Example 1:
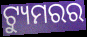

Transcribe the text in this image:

ଟ୍ୟୁମରର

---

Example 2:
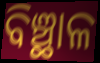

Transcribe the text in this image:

ବିଞ୍ଛାଳ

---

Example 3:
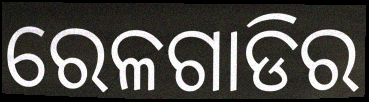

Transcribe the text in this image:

ରେଳଗାଡିର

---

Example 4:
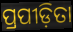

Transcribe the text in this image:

ପ୍ରପୀଡ଼ିତା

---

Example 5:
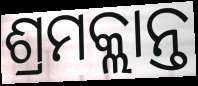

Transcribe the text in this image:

ଶ୍ରମକ୍ଲାନ୍ତ